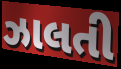
ઝાલતી